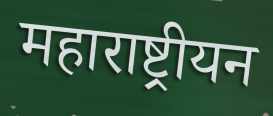
महाराष्ट्रीयन